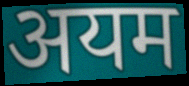
अयम